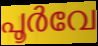
പൂർവേ